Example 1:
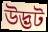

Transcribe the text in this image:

উদ্ভট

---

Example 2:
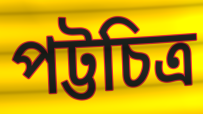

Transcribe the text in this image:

পট্টচিত্র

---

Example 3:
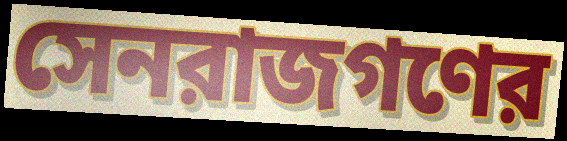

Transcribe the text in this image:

সেনরাজগণের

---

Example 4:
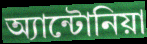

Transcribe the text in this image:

অ্যান্টোনিয়া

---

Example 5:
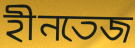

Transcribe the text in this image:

হীনতেজ